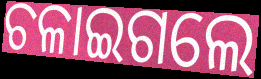
ଚଳାଇଗଲେ